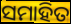
ସମାହିତ